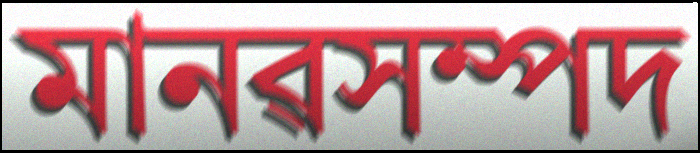
মানৱসম্পদ